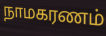
நாமகரணம்